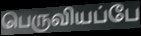
பெருவியப்பே